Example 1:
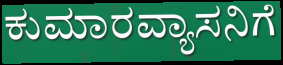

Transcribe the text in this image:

ಕುಮಾರವ್ಯಾಸನಿಗೆ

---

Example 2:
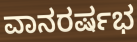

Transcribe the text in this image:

ವಾನರರ್ಷಭ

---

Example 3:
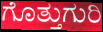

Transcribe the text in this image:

ಗೊತ್ತುಗುರಿ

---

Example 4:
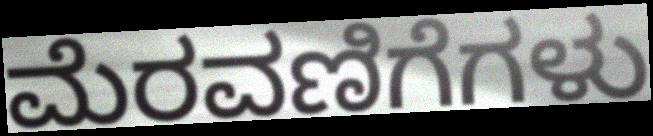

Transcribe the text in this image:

ಮೆರವಣಿಗೆಗಳು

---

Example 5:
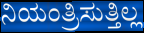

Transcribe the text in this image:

ನಿಯಂತ್ರಿಸುತ್ತಿಲ್ಲ